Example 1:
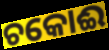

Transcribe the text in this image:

ଚକୋଈ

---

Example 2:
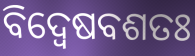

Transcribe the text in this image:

ବିଦ୍ୱେଷବଶତଃ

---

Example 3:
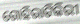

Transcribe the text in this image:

ଗୋହିରାଟିକିରୀ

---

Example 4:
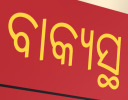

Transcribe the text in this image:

ବାକ୍ୟସ୍ଥ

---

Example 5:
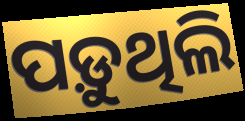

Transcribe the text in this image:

ପଡ଼ୁଥିଲି